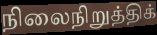
நிலைநிறுத்திக்